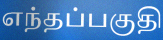
எந்தப்பகுதி